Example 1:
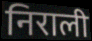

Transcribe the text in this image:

निराली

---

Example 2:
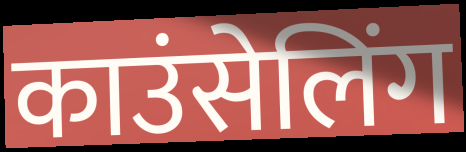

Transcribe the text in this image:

काउंसेलिंग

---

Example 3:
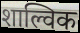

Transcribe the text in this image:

शाल्विक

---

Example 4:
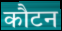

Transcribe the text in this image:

कौटन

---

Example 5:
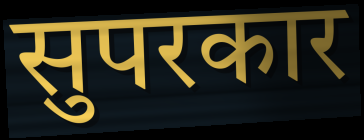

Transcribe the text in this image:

सुपरकार